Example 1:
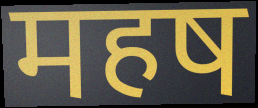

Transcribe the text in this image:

महष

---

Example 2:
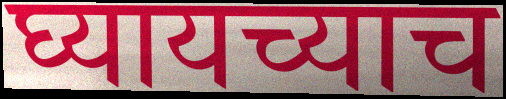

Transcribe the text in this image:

घ्यायच्याच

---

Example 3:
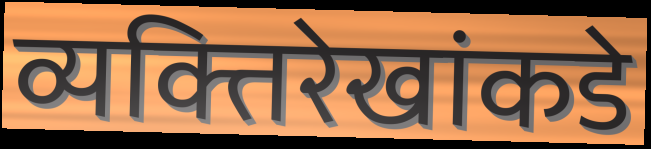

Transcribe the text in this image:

व्यक्तिरेखांकडे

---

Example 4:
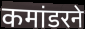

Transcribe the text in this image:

कमांडरने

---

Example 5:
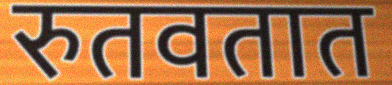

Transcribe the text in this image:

रुतवतात